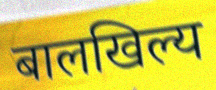
बालखिल्य